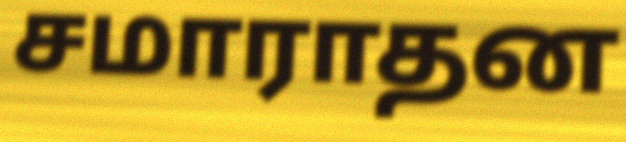
சமாராதன